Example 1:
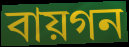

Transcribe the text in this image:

বায়গন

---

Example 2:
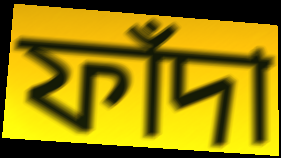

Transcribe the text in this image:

ফাঁদা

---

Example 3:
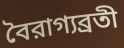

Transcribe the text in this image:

বৈরাগ্যব্রতী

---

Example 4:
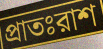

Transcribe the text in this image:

প্রাতঃরাশ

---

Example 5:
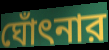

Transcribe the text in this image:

ঘোঁৎনার